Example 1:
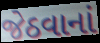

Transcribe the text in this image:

જેઠવાનાં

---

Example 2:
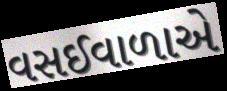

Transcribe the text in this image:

વસઈવાળાએ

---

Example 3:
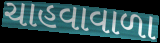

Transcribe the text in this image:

ચાહવાવાળા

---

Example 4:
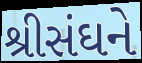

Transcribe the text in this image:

શ્રીસંઘને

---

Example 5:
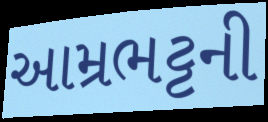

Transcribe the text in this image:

આમ્રભટ્ટની